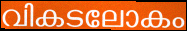
വികടലോകം